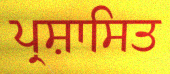
ਪ੍ਰਸ਼ਾਸਿਤ